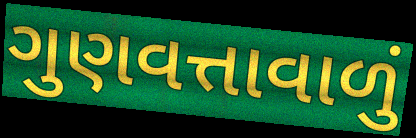
ગુણવત્તાવાળું